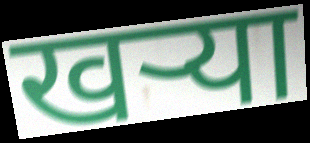
खऱ्या